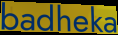
badheka